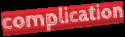
complication